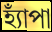
হ্যাঁপা